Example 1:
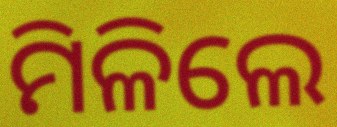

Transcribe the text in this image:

ମିଳିଲେ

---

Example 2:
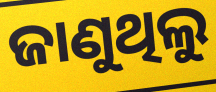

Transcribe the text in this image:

ଜାଣୁଥିଲୁ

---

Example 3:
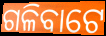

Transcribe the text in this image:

ଗଳିବାଟେ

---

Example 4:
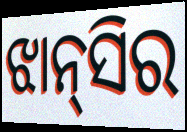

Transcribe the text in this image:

ଝାନ୍‌ସିର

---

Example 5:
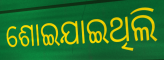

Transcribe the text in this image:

ଶୋଇଯାଇଥିଲି